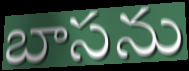
బాసను